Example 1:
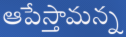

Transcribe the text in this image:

ఆపేస్తామన్న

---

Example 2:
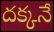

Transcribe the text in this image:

దక్కనే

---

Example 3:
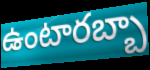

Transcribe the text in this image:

ఉంటారబ్బా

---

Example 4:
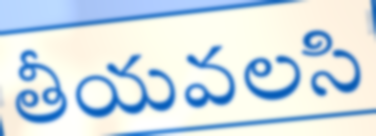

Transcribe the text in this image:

తీయవలసి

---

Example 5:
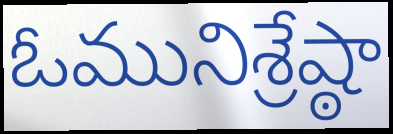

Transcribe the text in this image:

ఓమునిశ్రేష్ఠా